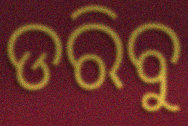
ଡରିବୁ